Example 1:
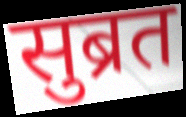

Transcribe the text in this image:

सुब्रत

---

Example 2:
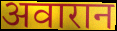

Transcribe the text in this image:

अवारान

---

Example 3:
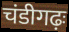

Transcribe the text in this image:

चंडीगढ़ः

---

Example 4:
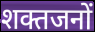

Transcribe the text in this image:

शक्तजनों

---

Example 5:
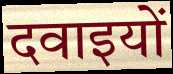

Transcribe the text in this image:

दवाइयों